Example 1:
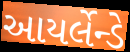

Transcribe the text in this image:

આયર્લેન્ડે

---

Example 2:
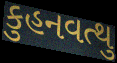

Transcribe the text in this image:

કુહનવત્થુ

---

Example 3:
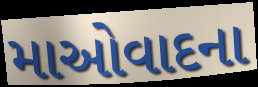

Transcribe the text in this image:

માઓવાદના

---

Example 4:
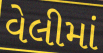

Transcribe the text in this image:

વેલીમાં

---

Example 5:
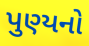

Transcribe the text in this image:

પુણ્યનો